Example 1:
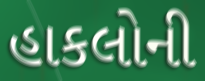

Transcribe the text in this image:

હાકલોની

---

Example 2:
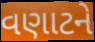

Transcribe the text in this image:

વણાટને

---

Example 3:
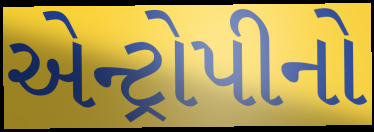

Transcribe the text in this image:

એન્ટ્રોપીનો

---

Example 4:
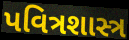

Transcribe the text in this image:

પવિત્રશાસ્ત્ર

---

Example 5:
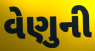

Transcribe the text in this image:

વેણુની